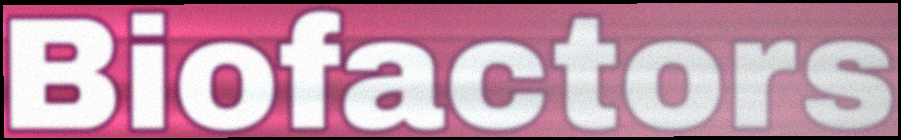
Biofactors